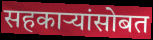
सहकाऱ्यांसोबत